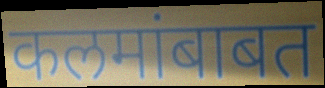
कलमांबाबत